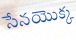
సేనయొక్క